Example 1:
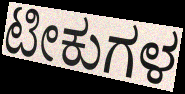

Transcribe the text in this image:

ಟೀಕುಗಳ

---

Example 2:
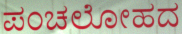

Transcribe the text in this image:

ಪಂಚಲೋಹದ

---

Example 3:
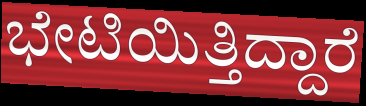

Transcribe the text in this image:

ಭೇಟಿಯಿತ್ತಿದ್ದಾರೆ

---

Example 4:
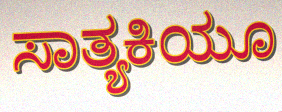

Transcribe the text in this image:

ಸಾತ್ಯಕಿಯೂ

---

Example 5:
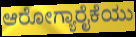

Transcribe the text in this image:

ಆರೋಗ್ಯಾರೈಕೆಯು